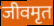
जीवमृत